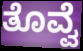
ತೊವ್ವೆ